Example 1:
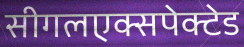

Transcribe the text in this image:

सीगलएक्सपेक्टेड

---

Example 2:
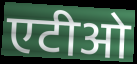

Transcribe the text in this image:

एटीओ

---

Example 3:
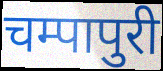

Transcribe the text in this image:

चम्पापुरी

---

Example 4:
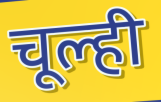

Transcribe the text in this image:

चूल्ही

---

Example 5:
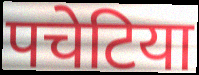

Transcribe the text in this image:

पचेटिया